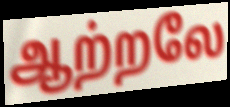
ஆற்றலே